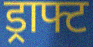
ड्राफ्ट